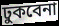
ঢুকবেনা